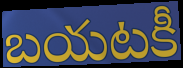
బయటకీ